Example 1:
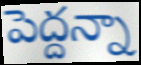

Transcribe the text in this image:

పెద్దన్నా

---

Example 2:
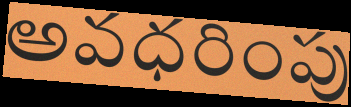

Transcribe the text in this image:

అవధరింపు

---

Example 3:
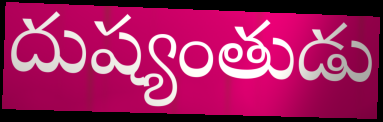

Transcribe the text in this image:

దుష్యంతుడు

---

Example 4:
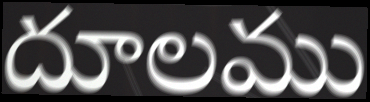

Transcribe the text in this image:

దూలము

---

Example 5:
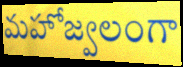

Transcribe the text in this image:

మహోజ్వలంగా